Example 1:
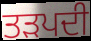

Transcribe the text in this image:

ਤੜਪਦੀ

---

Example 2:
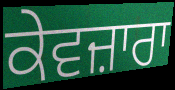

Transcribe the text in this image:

ਕੇਵਜ਼ਾਰਾ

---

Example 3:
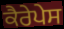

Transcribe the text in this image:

ਕੈਰੇਪੇਸ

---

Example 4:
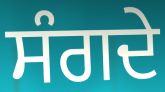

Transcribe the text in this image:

ਸੰਗਦੇ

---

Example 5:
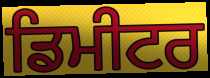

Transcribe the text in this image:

ਡਿਮੀਟਰ